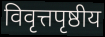
विवृत्तपृष्ठीय